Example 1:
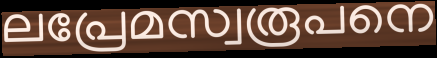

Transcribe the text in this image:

ലപ്രേമസ്വരൂപനെ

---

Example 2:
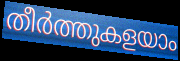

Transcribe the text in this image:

തീർത്തുകളയാം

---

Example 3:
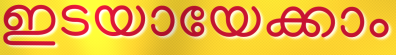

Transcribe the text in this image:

ഇടയായേക്കാം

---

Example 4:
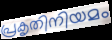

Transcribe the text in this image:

പ്രകൃതിനിയമം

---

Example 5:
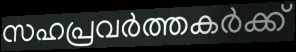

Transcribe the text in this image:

സഹപ്രവർത്തകർക്ക്